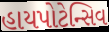
હાયપોટેન્સિવ